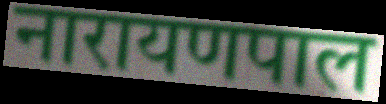
नारायणपाल